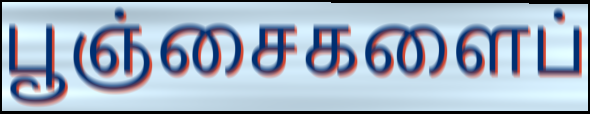
பூஞ்சைகளைப்